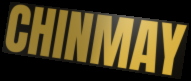
CHINMAY